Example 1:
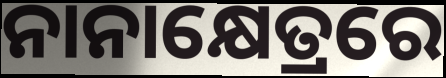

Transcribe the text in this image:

ନାନାକ୍ଷେତ୍ରରେ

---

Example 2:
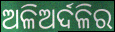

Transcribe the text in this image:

ଅଳିଅର୍ଦଳିର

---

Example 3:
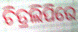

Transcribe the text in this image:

ଚିତ୍ରଲିପିରେ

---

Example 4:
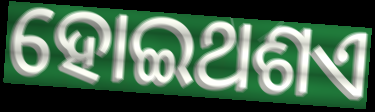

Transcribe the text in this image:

ହୋଇଥଶଏ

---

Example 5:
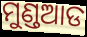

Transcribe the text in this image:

ମୁଣ୍ଡଆଡ